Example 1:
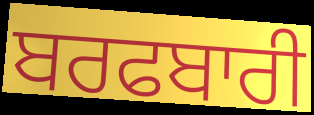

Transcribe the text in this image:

ਬਰਫਬਾਰੀ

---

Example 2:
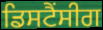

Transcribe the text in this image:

ਡਿਸਟੈਂਸੀਗ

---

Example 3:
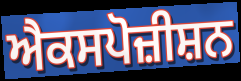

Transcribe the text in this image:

ਐਕਸਪੋਜ਼ੀਸ਼ਨ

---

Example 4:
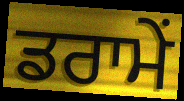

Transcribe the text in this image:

ਡਰਾਮੇਂ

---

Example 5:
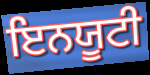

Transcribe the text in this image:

ਇਨਯੂਟੀ